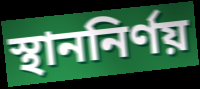
স্থাননির্ণয়